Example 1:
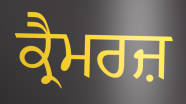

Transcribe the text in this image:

ਕ੍ਰੈਮਰਜ਼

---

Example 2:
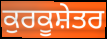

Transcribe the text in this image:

ਕੁਰਕੂਸ਼ੇਤਰ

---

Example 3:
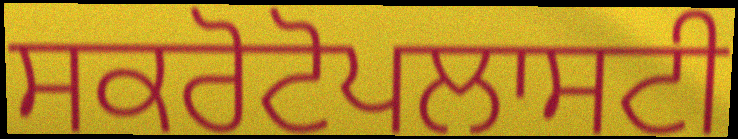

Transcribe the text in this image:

ਸਕਰੋਟੋਪਲਾਸਟੀ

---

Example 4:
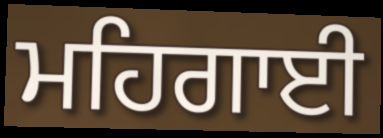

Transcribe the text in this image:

ਮਹਿਗਾਈ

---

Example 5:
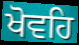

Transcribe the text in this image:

ਖੋਵਹਿ